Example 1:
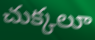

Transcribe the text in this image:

చుక్కలూ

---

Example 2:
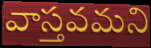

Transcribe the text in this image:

వాస్తవమని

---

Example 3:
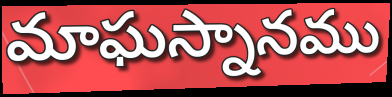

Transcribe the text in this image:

మాఘస్నానము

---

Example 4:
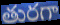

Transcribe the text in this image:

తురగా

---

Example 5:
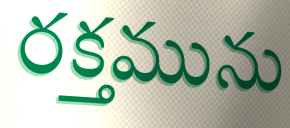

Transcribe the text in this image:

రక్తమును